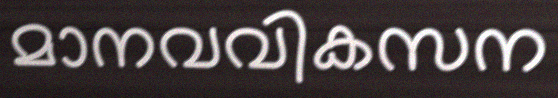
മാനവവികസന